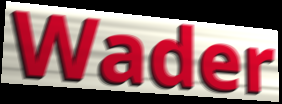
Wader